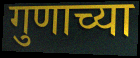
गुणाच्या